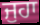
ਜੁਹਾ